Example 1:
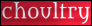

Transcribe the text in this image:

choultry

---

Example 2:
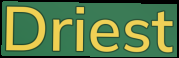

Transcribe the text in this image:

Driest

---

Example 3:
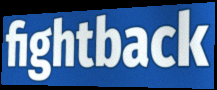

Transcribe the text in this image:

fightback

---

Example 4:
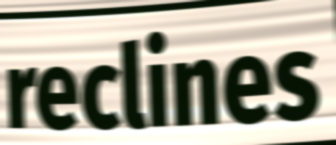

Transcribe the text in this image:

reclines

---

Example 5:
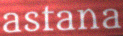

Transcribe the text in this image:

astana